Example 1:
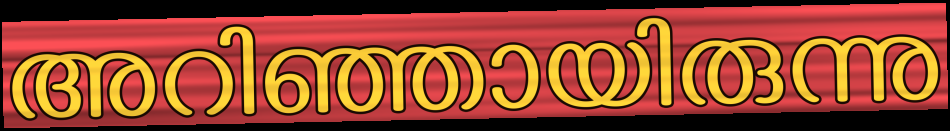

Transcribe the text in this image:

അറിഞ്ഞായിരുന്നു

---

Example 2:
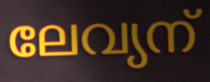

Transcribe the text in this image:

ലേവ്യന്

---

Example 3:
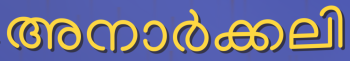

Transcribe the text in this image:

അനാർക്കലി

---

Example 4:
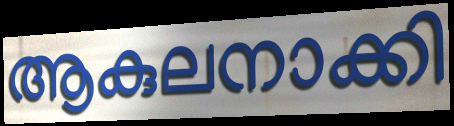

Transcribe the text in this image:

ആകുലനാക്കി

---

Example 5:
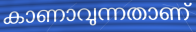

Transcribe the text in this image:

കാണാവുന്നതാണ്